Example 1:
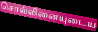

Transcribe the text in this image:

சொல்லினையுடைய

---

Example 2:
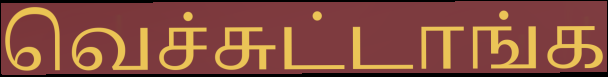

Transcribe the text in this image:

வெச்சுட்டாங்க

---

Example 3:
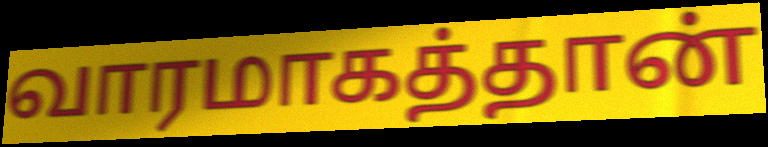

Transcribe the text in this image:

வாரமாகத்தான்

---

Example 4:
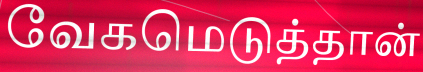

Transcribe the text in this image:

வேகமெடுத்தான்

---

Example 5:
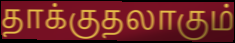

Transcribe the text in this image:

தாக்குதலாகும்